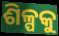
ଶିଳ୍ପକୁ